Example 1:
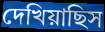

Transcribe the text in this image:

দেখিয়াছিস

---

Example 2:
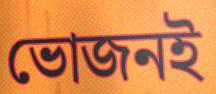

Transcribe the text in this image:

ভোজনই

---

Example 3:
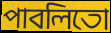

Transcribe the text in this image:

পাবলিতো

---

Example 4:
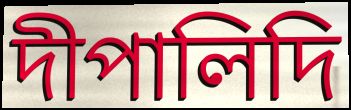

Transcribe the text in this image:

দীপালিদি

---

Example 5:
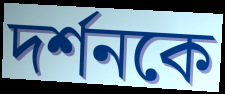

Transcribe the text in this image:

দর্শনকে